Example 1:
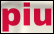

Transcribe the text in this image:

piu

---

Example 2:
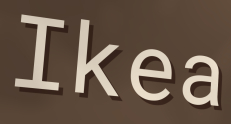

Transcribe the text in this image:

Ikea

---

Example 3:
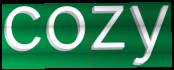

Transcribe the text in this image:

cozy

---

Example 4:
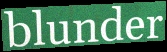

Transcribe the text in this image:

blunder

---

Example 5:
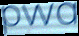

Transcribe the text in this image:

pwa